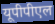
यूपीपीएल